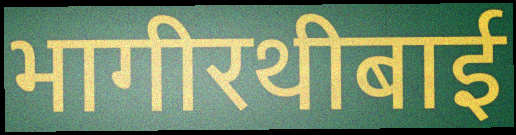
भागीरथीबाई